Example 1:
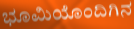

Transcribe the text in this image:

ಭೂಮಿಯೊಂದಿಗಿನ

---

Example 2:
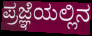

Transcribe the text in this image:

ಪ್ರಜ್ಞೆಯಲ್ಲಿನ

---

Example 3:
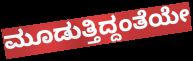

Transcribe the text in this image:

ಮೂಡುತ್ತಿದ್ದಂತೆಯೇ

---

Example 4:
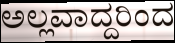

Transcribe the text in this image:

ಅಲ್ಲವಾದ್ದರಿಂದ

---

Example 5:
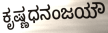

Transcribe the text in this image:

ಕೃಷ್ಣಧನಂಜಯೌ